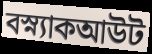
বস্ন্যাকআউট